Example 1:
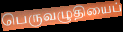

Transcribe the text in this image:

பெருவழுதியைப்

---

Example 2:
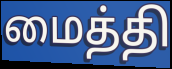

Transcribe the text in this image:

மைத்தி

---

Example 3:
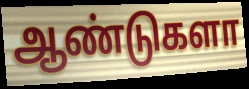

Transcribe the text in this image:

ஆண்டுகளா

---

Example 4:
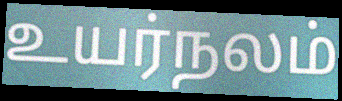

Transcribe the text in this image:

உயர்நலம்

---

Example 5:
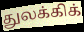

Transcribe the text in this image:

துலக்கிக்